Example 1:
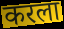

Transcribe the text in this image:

करला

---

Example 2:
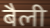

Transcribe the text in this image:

बैली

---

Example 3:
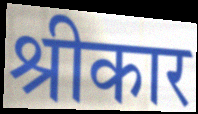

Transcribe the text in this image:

श्रीकार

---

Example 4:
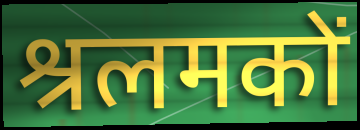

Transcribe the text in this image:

श्रलमकों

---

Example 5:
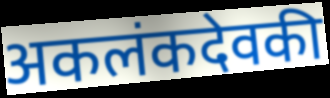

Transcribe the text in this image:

अकलंकदेवकी